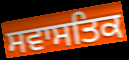
ਸਵਾਸਤਿਕ